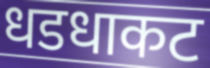
धडधाकट